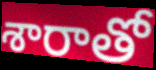
శారాతో